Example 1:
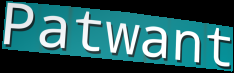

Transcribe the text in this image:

Patwant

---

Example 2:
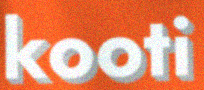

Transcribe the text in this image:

kooti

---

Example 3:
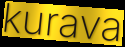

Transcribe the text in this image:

kurava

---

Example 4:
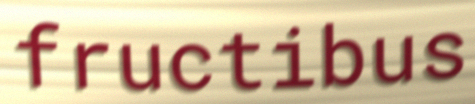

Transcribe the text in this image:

fructibus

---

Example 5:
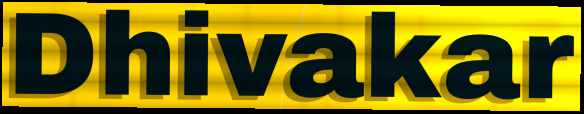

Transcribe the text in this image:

Dhivakar